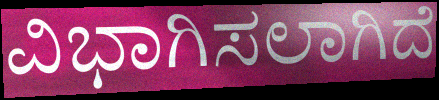
ವಿಭಾಗಿಸಲಾಗಿದೆ